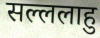
सल्ललाहु